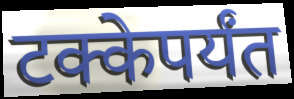
टक्केपर्यंत